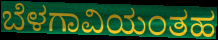
ಬೆಳಗಾವಿಯಂತಹ